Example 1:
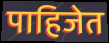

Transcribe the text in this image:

पाहिजेत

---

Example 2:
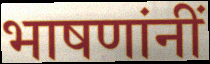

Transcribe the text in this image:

भाषणांनीं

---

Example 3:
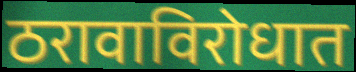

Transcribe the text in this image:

ठरावाविरोधात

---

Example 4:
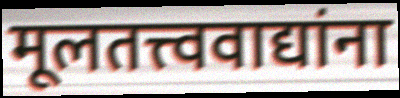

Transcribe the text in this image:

मूलतत्त्ववाद्यांना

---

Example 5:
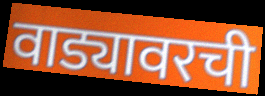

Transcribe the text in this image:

वाड्यावरची